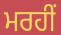
ਮਰਹੀਂ